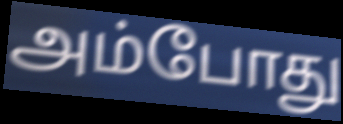
அம்போது